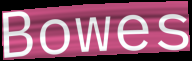
Bowes